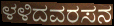
ಳಳಿದವರಸನ